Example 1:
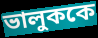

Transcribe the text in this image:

ভালুককে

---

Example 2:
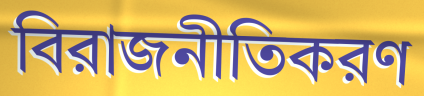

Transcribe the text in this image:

বিরাজনীতিকরণ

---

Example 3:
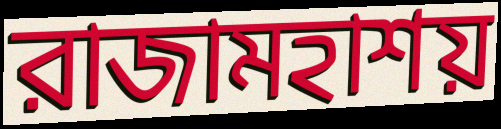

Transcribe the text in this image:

রাজামহাশয়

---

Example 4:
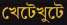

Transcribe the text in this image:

খেটেখুটে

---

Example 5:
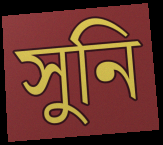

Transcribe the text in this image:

সুনি